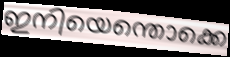
ഇനിയെന്തൊക്കെ